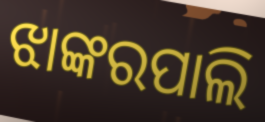
ଝାଙ୍କରପାଲି